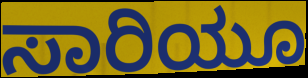
ಸಾರಿಯೂ